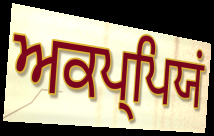
ਅਕਪ੍ਪਿਯਂ